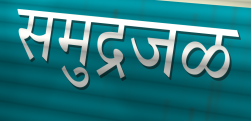
समुद्रजळ